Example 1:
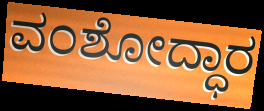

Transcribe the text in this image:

ವಂಶೋದ್ಧಾರ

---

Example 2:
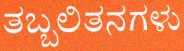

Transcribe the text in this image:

ತಬ್ಬಲಿತನಗಳು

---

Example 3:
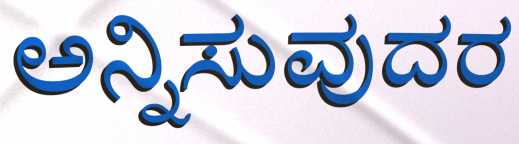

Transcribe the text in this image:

ಅನ್ನಿಸುವುದರ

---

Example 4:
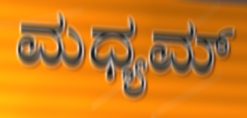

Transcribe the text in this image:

ಮಧ್ಯಮ್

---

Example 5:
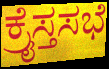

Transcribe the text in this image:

ಕ್ರೈಸ್ತಸಭೆ